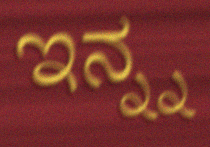
ಇನ್ನ್ನ